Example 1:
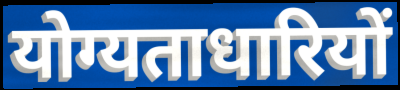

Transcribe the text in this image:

योग्यताधारियों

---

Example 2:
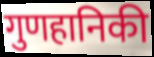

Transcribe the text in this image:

गुणहानिकी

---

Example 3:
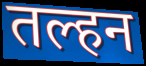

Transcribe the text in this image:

तल्हन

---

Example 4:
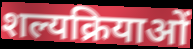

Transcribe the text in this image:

शल्यक्रियाओं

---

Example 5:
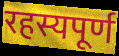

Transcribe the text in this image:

रहस्यपूर्ण